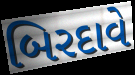
બિરદાવે